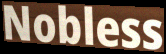
Nobless